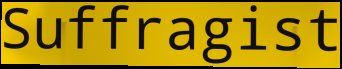
Suffragist